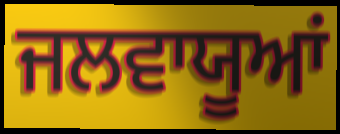
ਜਲਵਾਯੂਆਂ